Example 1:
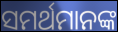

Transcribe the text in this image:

ସମର୍ଥମାନଙ୍କ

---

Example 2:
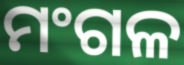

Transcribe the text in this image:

ମଂଗଳ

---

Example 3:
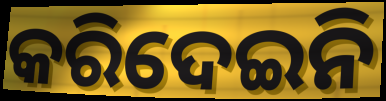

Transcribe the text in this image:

କରିଦେଇନି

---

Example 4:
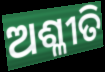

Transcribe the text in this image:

ଅଶ୍ଳୀତି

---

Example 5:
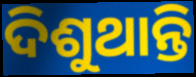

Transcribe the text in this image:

ଦିଶୁଥାନ୍ତି